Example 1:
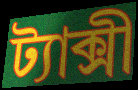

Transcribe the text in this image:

ট্যাক্সী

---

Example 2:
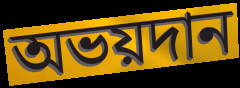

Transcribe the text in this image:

অভয়দান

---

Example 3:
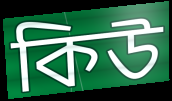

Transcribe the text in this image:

কিউ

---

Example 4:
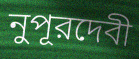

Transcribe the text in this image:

নুপূরদেবী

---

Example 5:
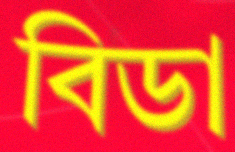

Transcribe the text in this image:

বিডা